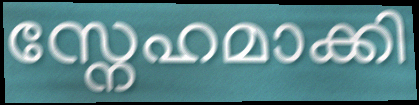
സ്നേഹമാക്കി